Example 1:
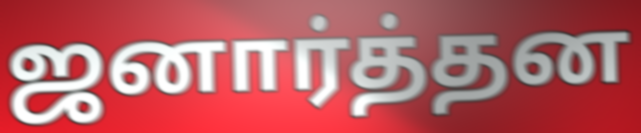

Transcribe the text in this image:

ஜனார்த்தன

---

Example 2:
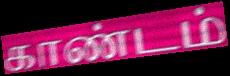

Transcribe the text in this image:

காண்டம்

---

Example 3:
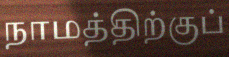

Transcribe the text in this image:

நாமத்திற்குப்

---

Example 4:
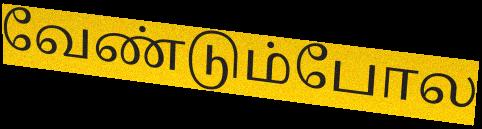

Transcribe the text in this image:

வேண்டும்போல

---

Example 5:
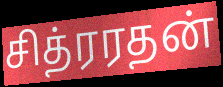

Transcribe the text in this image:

சித்ரரதன்